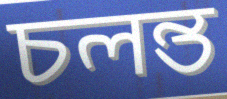
চলন্ত